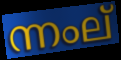
ന്നംല്